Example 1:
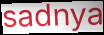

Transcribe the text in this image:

sadnya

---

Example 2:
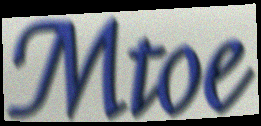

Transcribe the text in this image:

Mtoe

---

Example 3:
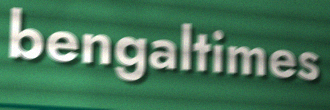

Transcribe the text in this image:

bengaltimes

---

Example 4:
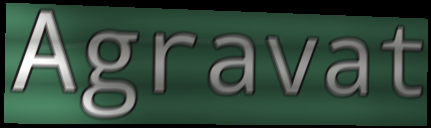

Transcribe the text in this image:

Agravat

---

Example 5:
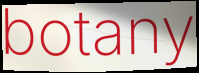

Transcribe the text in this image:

botany